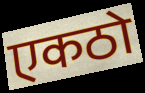
एकठो